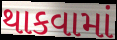
થાકવામાં